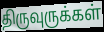
திருவுருக்கள்